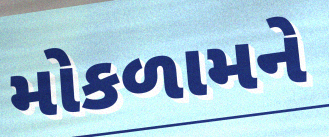
મોકળામને